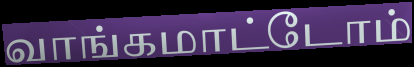
வாங்கமாட்டோம்